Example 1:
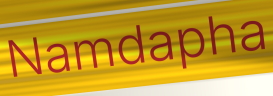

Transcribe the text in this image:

Namdapha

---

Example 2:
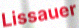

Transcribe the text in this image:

Lissauer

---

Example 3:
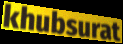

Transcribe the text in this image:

khubsurat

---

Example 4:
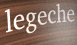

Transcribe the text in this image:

legeche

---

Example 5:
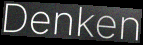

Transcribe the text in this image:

Denken